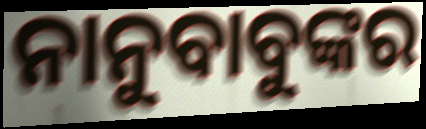
ନାନୁବାବୁଙ୍କର